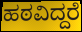
ಹಠವಿದ್ದರೆ